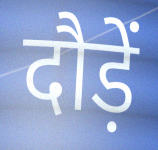
दौड़ें